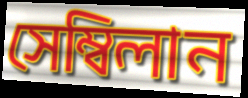
সেম্বিলান